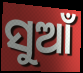
ସୁଆଁ